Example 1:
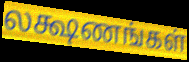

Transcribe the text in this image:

லக்ஷணங்கள்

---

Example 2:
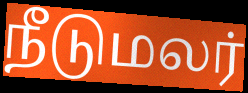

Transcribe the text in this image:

நீடுமலர்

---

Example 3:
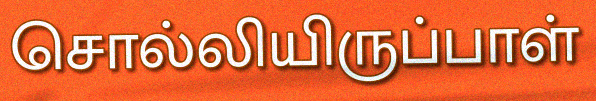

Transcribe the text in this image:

சொல்லியிருப்பாள்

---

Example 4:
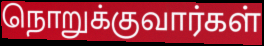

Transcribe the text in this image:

நொறுக்குவார்கள்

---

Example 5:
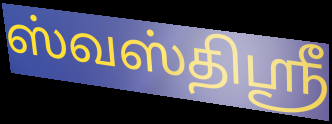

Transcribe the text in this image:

ஸ்வஸ்திஸ்ரீ